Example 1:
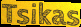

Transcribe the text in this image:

Tsikas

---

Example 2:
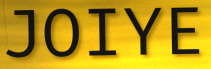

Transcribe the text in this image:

JOIYE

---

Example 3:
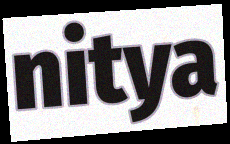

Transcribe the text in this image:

nitya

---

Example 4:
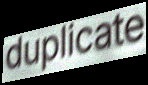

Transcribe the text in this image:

duplicate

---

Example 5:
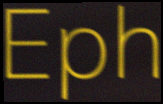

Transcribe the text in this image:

Eph